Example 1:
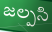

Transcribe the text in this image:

జల్పసి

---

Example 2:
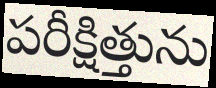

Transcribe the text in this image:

పరీక్షిత్తును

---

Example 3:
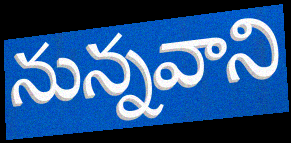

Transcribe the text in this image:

నున్నవాని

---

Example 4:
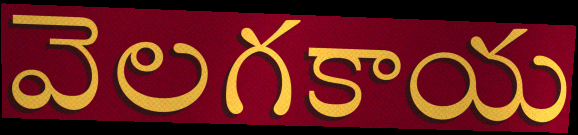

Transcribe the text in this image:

వెలగకాయ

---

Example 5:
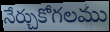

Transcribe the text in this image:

నేర్చుకోగలము